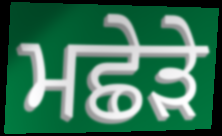
ਮਛੇੜੇ